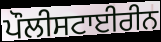
ਪੌਲੀਸਟਾਈਰੀਨ